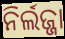
ନିର୍ଲଜ୍ଜା